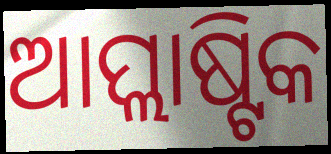
ଆପ୍ଲାଷ୍ଟିକ